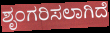
ಶೃಂಗರಿಸಲಾಗಿದೆ